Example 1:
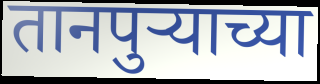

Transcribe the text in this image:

तानपुऱ्याच्या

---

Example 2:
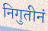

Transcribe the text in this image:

निगुतीनं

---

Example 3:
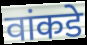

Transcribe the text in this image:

वांकडे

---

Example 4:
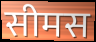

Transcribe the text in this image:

सीमस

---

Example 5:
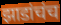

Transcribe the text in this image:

झाडांचंच